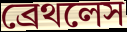
ব্রেথলেস